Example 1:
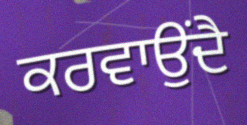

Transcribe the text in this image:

ਕਰਵਾਉਂਦੈ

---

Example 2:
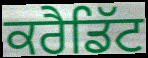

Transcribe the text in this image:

ਕਰੈਡਿੱਟ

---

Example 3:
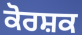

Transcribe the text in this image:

ਕੋਰਸ਼ਕ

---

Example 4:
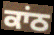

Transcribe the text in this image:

ਕਾਂਠ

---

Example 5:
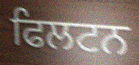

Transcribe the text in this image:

ਫਿਲਟਨ